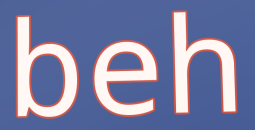
beh